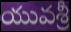
యువశ్రీ